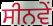
ਸੀਨਵੇਂ